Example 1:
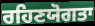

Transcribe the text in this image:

ਰਹਿਣਯੋਗਤਾ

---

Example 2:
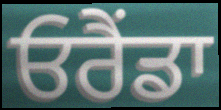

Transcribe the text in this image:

ਓਰੈਂਡਾ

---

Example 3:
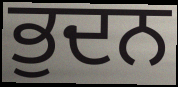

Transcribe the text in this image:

ਭੁਦਨ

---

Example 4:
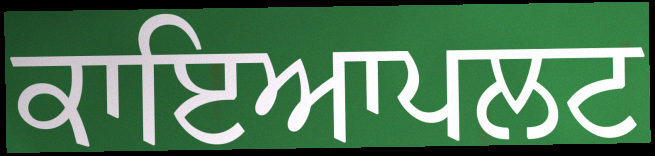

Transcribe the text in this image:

ਕਾਇਆਪਲਟ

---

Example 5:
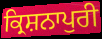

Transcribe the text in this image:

ਕ੍ਰਿਸ਼ਨਾਪੁਰੀ